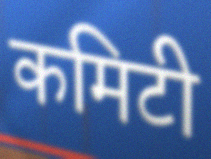
कमिटी